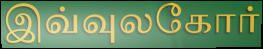
இவ்வுலகோர்